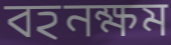
বহনক্ষম